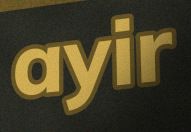
ayir